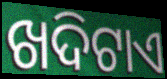
ଖଦିଟାଏ